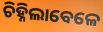
ଚିହ୍ନିଲାବେଳେ